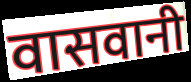
वासवानी